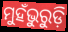
ମୁହଁଭୁରୁଡ଼ି